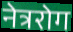
नेत्ररोग